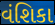
વંશિકા